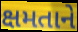
ક્ષમતાને